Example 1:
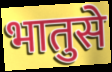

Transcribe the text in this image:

भातुसे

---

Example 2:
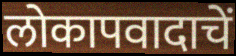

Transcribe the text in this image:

लोकापवादाचें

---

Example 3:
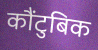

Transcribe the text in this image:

कौंटुबिक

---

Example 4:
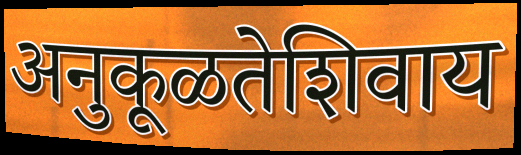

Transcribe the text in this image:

अनुकूळतेशिवाय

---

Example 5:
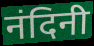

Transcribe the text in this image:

नंदिनी